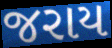
જરાય